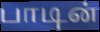
பாடின்